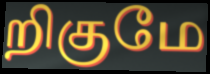
றிகுமே